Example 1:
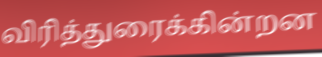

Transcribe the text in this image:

விரித்துரைக்கின்றன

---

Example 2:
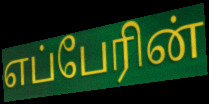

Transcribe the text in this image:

எப்பேரின்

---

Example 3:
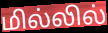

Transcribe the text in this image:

மில்லில்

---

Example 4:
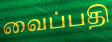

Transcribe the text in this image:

வைப்பதி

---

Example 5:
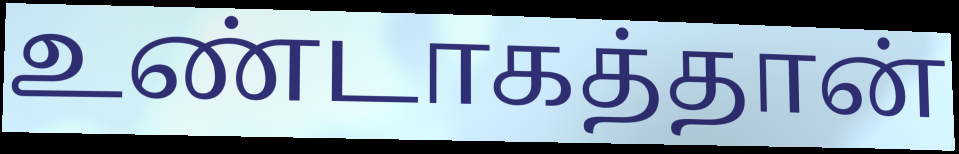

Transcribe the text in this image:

உண்டாகத்தான்